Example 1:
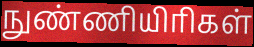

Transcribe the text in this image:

நுண்ணியிரிகள்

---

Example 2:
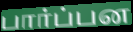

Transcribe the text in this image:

பார்ப்பன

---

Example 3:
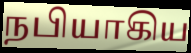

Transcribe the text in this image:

நபியாகிய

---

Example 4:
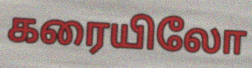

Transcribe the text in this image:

கரையிலோ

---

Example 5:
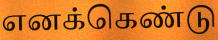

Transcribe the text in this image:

எனக்கெண்டு